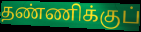
தண்ணிக்குப்